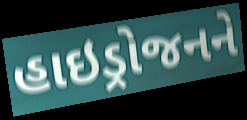
હાઇડ્રોજનને